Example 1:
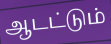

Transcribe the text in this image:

ஆடட்டும்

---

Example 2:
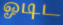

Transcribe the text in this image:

ஓடிட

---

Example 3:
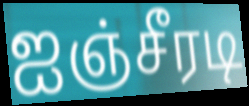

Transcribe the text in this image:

ஐஞ்சீரடி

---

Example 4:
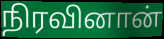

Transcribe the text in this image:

நிரவினான்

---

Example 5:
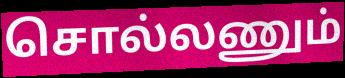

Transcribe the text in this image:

சொல்லணும்